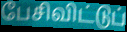
பேசிவிட்டுப்